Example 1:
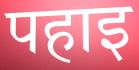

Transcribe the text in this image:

पहाइ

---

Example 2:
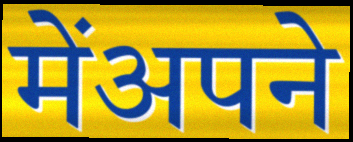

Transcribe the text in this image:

मेंअपने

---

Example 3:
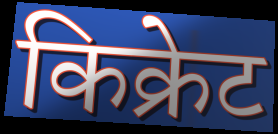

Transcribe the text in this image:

किक्रेट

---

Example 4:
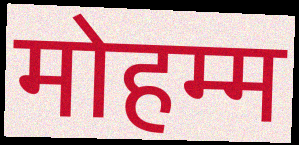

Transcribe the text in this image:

मोहम्म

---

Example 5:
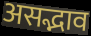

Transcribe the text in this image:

असद्भाव